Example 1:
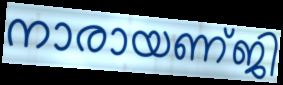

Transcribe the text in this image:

നാരായണ്ജി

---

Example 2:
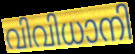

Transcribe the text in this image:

വിവിധാനി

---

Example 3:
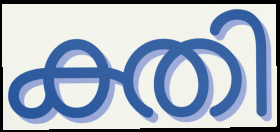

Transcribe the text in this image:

ക്തി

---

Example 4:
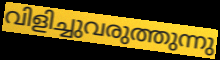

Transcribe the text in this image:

വിളിച്ചുവരുത്തുന്നു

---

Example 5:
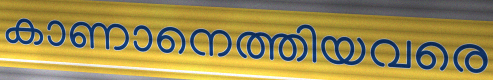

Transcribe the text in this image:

കാണാനെത്തിയവരെ